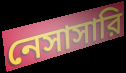
নেসাসারি